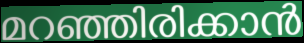
മറഞ്ഞിരിക്കാൻ